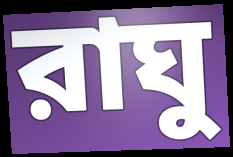
রাঘু